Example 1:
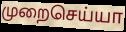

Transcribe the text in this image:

முறைசெய்யா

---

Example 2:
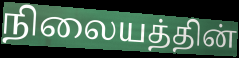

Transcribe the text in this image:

நிலையத்தின்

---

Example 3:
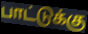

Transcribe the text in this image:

பாட்டுக்கு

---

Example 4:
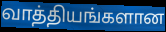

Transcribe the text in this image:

வாத்தியங்களான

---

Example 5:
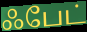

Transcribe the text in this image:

ஃபேட்